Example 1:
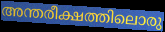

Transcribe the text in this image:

അന്തരീക്ഷത്തിലൊരു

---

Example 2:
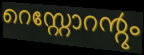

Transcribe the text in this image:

റെസ്റ്റോറന്റും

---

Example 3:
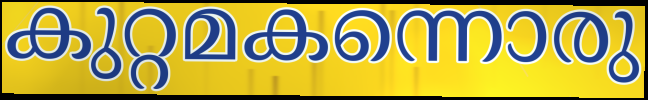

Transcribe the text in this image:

കുറ്റമകന്നൊരു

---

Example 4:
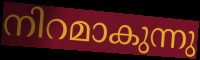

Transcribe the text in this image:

നിറമാകുന്നു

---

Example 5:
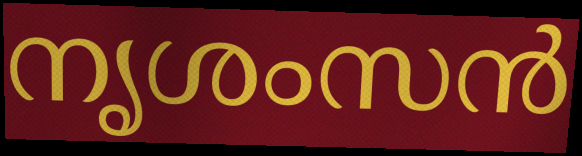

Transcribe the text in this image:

നൃശംസൻ